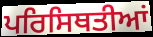
ਪਰਿਸਿਥਤੀਆਂ